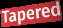
Tapered